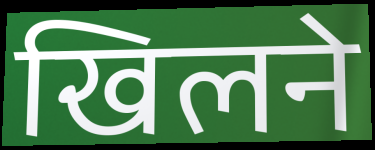
खिलने